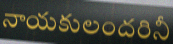
నాయకులందరినీ